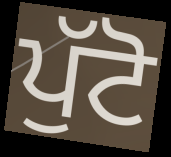
ਪੁੱਟੋ